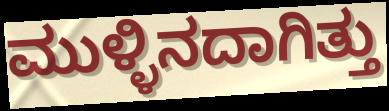
ಮುಳ್ಳಿನದಾಗಿತ್ತು